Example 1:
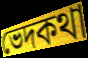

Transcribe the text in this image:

ভেদকথা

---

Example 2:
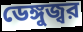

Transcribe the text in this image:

ডেঙ্গুজ্বর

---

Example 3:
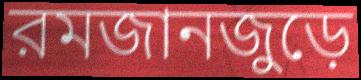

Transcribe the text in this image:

রমজানজুড়ে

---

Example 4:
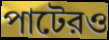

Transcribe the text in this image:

পাটেরও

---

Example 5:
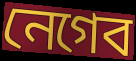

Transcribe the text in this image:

নেগেব